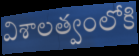
విశాలత్వంలోకి